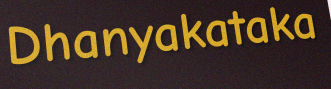
Dhanyakataka